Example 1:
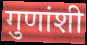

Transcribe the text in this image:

गुणांशी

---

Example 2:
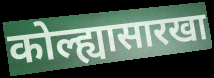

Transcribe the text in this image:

कोल्ह्यासारखा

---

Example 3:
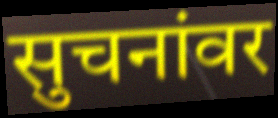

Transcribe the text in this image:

सुचनांवर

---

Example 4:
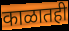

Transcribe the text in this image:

काळातही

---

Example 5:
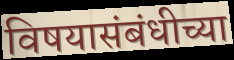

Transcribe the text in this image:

विषयासंबंधीच्या